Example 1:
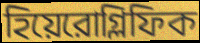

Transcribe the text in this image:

হিয়েরোগ্লিফিক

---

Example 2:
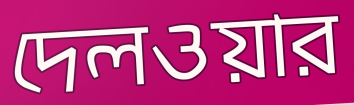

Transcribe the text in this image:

দেলওয়ার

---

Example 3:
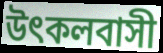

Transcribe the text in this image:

উৎকলবাসী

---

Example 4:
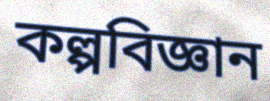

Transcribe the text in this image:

কল্পবিজ্ঞান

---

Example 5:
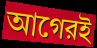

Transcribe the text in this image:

আগেরই